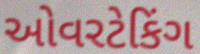
ઓવરટેકિંગ